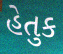
હેતુક